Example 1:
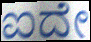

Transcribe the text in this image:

ಐದೇ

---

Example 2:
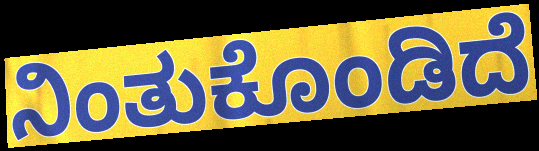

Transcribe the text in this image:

ನಿಂತುಕೊಂಡಿದೆ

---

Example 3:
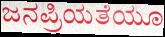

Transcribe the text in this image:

ಜನಪ್ರಿಯತೆಯೂ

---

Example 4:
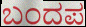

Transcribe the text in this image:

ಬಂದಪ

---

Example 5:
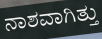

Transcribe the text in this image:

ನಾಶವಾಗಿತ್ತು